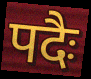
पदैः